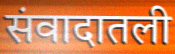
संवादातली